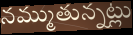
నమ్ముతున్నట్లు